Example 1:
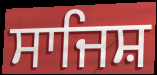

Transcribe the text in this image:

ਸਾਜਿਸ਼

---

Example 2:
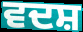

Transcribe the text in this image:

ਵਦਸ਼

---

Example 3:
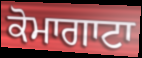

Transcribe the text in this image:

ਕੋਮਾਗਾਟਾ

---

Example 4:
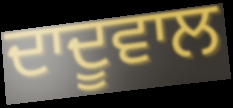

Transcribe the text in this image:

ਦਾਦੂਵਾਲ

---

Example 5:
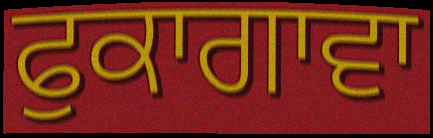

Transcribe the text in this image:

ਫੁਕਾਗਾਵਾ